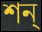
শন্